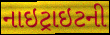
નાઇટ્રાઇટની